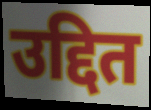
उद्दित